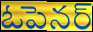
ఓపెనర్